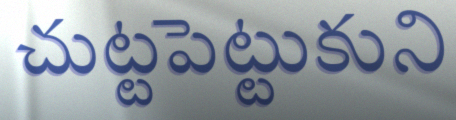
చుట్టపెట్టుకుని